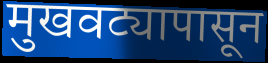
मुखवट्यापासून